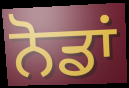
ਨੋਡਾਂ